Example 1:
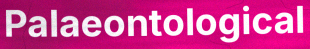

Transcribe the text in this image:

Palaeontological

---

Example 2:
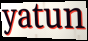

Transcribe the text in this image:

yatun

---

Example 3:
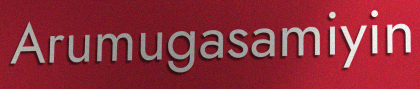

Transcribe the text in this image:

Arumugasamiyin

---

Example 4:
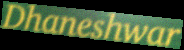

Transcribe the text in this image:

Dhaneshwar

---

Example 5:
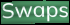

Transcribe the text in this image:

Swaps